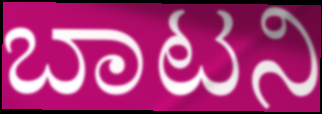
ಬಾಟನಿ